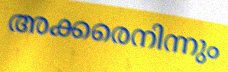
അക്കരെനിന്നും